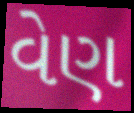
વેણ